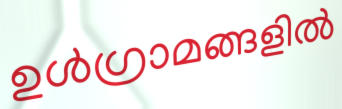
ഉൾഗ്രാമങ്ങളിൽ